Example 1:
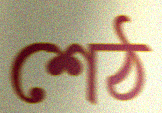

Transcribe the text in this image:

শেঠ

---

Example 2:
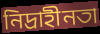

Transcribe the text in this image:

নিদ্রাহীনতা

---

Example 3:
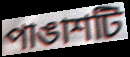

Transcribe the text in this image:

পাঙাশটি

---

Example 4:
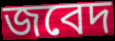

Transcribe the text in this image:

জবেদ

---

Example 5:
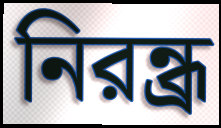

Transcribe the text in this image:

নিরন্ধ্র